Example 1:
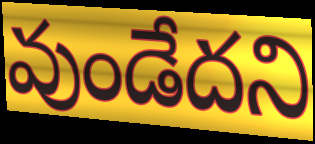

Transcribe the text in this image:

వుండేదని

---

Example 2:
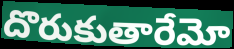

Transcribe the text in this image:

దొరుకుతారేమో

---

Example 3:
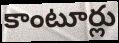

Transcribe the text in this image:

కాంటూర్లు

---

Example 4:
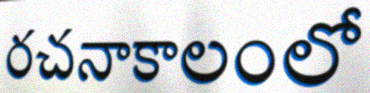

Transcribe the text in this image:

రచనాకాలంలో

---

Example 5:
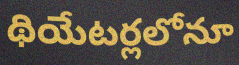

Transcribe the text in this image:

థియేటర్లలోనూ